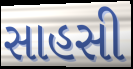
સાહસી